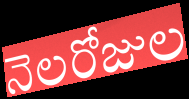
నెలరోజుల